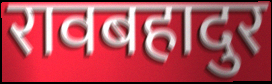
रावबहादुर